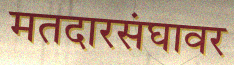
मतदारसंघावर